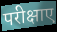
परीक्षाए